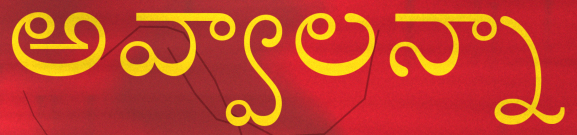
అవ్వాలన్నా